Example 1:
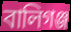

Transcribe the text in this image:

বালিগঞ্জ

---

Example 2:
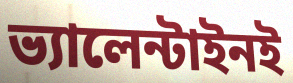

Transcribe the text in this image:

ভ্যালেন্টাইনই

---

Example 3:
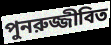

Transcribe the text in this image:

পুনরুজ্জীবিত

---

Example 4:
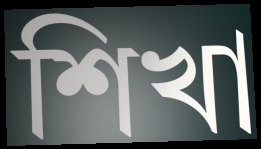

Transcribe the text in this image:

শিখা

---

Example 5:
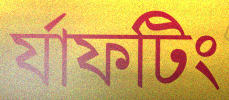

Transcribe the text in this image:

র্যাফটিং